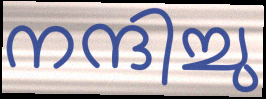
നന്ദിച്ചു